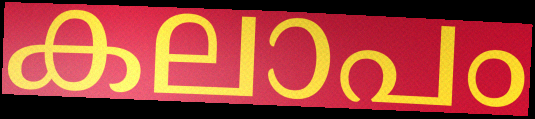
കലാപം